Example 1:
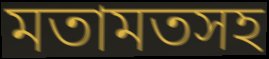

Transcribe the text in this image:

মতামতসহ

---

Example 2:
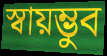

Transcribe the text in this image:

স্বায়ম্ভুব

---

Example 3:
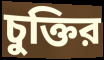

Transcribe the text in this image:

চুক্তির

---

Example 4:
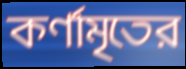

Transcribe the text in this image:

কর্ণামৃতের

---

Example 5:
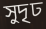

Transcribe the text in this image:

সুদৃঢ